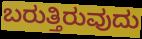
ಬರುತ್ತಿರುವುದು